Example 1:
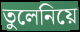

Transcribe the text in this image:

তুলেনিয়ে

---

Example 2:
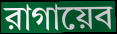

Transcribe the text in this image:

রাগায়েব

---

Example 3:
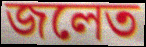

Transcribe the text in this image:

জলেত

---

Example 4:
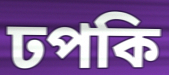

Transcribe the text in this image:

ঢপকি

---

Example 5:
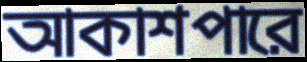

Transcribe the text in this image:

আকাশপারে